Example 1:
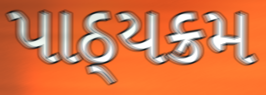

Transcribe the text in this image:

પાઠ્યક્રમ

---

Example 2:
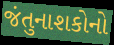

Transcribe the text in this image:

જંતુનાશકોનો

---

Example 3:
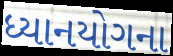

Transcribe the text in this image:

ધ્યાનયોગના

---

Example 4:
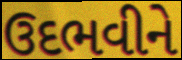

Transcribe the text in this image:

ઉદભવીને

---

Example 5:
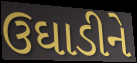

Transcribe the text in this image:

ઉઘાડીને